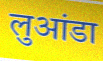
लुआंडा